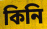
কিনি